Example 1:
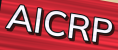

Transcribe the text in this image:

AICRP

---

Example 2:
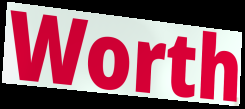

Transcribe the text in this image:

Worth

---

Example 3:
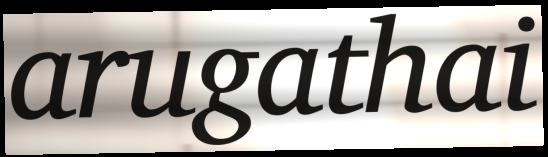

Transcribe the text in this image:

arugathai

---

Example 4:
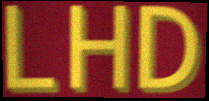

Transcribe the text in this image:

LHD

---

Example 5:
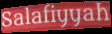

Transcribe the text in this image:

Salafiyyah